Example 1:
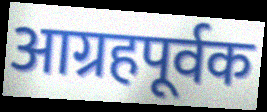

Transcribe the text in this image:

आग्रहपूर्वक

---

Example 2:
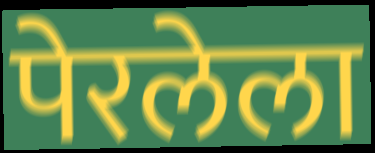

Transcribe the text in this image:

पेरलेला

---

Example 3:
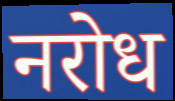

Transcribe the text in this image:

नरोध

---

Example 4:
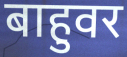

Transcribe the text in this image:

बाहुवर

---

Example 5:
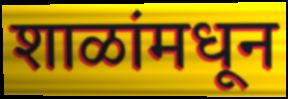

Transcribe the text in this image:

शाळांमधून